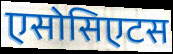
एसोसिएटस